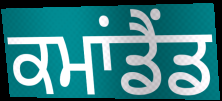
ਕਮਾਂਡੈਂਡ